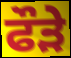
ਫੌੜੇ